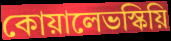
কোয়ালেভস্কিয়ি